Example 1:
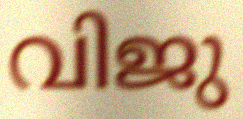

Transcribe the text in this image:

വിജു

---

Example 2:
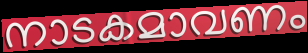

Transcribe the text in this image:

നാടകമാവണം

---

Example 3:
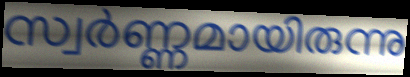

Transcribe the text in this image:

സ്വർണ്ണമായിരുന്നു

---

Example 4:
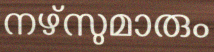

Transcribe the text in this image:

നഴ്സുമാരും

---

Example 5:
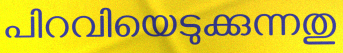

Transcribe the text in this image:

പിറവിയെടുക്കുന്നതു